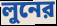
লুনের